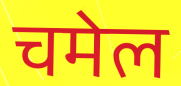
चमेल